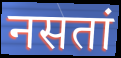
नसतां